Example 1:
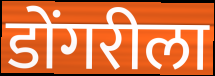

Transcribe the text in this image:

डोंगरीला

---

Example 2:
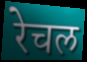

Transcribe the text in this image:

रेचल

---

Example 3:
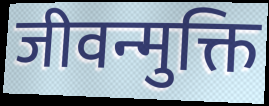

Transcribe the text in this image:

जीवन्मुक्ति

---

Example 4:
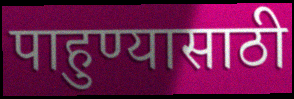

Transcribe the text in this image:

पाहुण्यासाठी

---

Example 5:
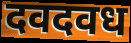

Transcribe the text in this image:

दवदवध